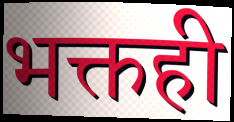
भक्तही